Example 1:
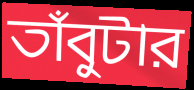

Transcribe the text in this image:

তাঁবুটার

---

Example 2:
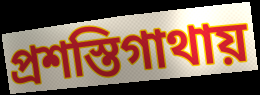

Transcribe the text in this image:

প্রশস্তিগাথায়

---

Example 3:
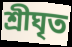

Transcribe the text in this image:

শ্রীঘৃত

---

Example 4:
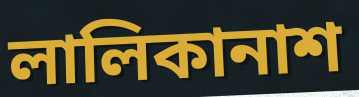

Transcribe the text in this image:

লালিকানাশ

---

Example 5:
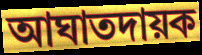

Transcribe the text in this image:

আঘাতদায়ক